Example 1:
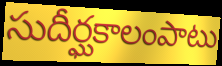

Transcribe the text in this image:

సుదీర్ఘకాలంపాటు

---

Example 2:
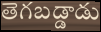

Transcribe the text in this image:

తెగబడ్డాడు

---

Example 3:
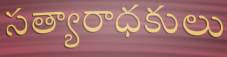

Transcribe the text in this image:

సత్యారాధకులు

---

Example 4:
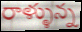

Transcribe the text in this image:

రాళ్ళున్న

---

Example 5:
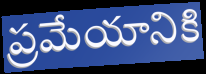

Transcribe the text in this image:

ప్రమేయానికి